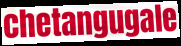
chetangugale